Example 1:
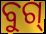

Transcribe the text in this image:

ବୁଗ୍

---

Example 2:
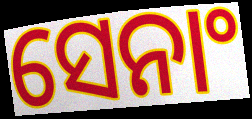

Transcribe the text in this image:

ସେନାଂ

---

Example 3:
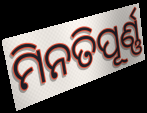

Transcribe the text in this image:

ମିନତିପୂର୍ଣ୍ଣ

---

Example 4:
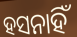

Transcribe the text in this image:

ହସନାହିଁ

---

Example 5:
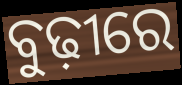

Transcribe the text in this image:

ବୁଢ଼ୀରେ